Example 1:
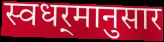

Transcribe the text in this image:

स्वधर्मानुसार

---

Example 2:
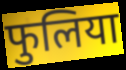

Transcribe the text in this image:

फुलिया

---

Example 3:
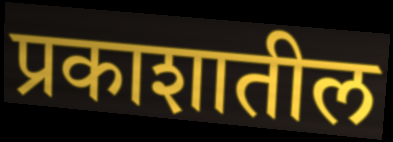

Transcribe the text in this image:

प्रकाशातील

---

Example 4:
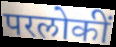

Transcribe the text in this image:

परलोकीं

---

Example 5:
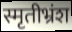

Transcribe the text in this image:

स्मृतीभ्रंश